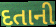
દતાની